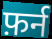
फ़र्न